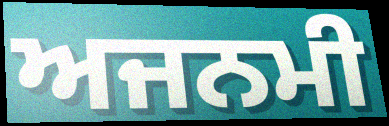
ਅਜਨਮੀ